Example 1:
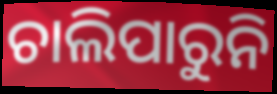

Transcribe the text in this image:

ଚାଲିପାରୁନି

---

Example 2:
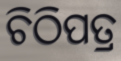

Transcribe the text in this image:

ଚିଠିପତ୍ର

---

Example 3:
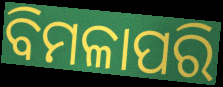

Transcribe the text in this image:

ବିମଳାପରି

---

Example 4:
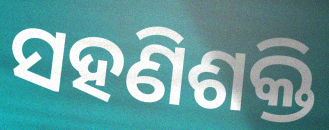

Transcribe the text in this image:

ସହଣିଶକ୍ତି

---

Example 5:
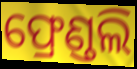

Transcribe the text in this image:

ଫ୍ରେଣ୍ଡଲି